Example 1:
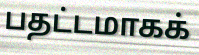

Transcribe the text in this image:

பதட்டமாகக்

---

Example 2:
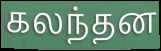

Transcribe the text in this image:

கலந்தன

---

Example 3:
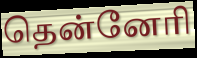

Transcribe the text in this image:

தென்னேரி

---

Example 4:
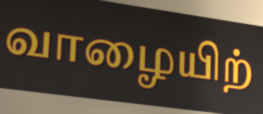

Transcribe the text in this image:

வாழையிற்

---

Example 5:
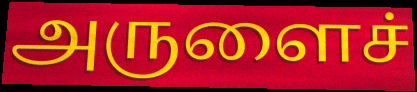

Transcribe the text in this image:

அருளைச்